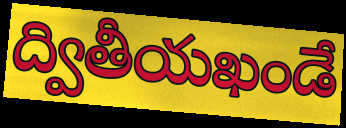
ద్వితీయఖండే